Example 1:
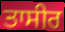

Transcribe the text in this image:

ਤਾਸੀਰ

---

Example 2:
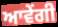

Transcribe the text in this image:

ਆਵੇਂਗੀ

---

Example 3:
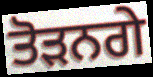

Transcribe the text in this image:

ਤੋੜਨਗੇ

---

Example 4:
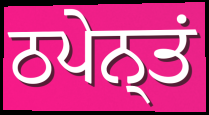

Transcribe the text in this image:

ਠਪੇਨ੍ਤਂ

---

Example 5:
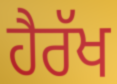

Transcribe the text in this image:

ਹੈਰੱਖ